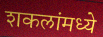
शकलांमध्ये